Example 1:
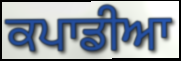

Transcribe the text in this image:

ਕਪਾਡੀਆ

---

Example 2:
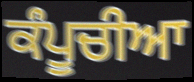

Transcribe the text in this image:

ਕੰਪੂਚੀਆ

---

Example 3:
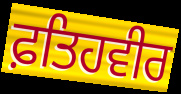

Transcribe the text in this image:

ਫ਼ਤਿਹਵੀਰ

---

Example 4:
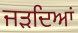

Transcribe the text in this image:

ਜੜਦਿਆਂ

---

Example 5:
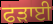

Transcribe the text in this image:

ਫੜਾਈ